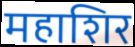
महाशिर